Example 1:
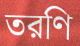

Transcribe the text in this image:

তরণি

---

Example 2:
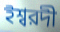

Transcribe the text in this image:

ইশ্বরদী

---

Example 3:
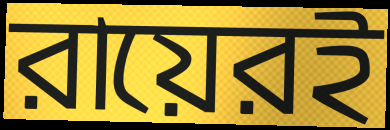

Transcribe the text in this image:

রায়েরই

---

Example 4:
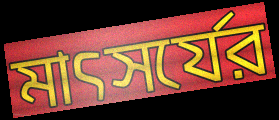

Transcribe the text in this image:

মাৎসর্যের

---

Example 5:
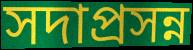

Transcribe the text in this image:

সদাপ্রসন্ন